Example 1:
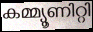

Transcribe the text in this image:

കമ്മ്യൂണിറ്റി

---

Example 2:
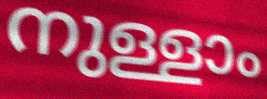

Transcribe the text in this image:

നുള്ളാം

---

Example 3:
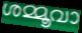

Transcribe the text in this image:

ശമ്മൂവാ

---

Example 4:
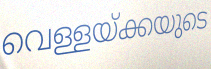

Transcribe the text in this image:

വെള്ളയ്ക്കയുടെ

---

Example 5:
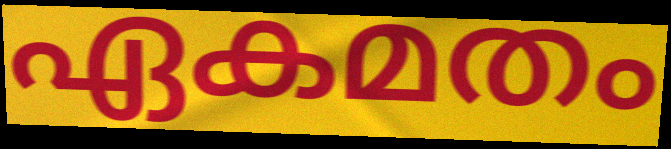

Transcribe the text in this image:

ഏകമതം